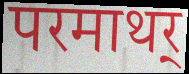
परमाथर्